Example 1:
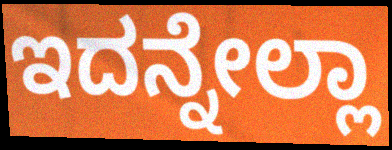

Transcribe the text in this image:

ಇದನ್ನೇಲ್ಲಾ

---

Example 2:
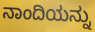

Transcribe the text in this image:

ನಾಂದಿಯನ್ನು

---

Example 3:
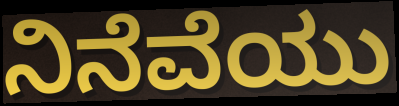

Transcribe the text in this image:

ನಿನೆವೆಯು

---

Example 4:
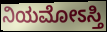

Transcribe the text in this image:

ನಿಯಮೋಽಸ್ತಿ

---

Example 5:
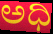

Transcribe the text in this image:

ಅಧಿ